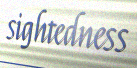
sightedness